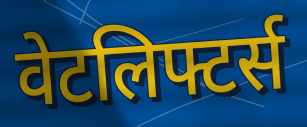
वेटलिफ्टर्स